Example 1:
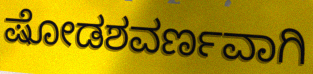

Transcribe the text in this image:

ಷೋಡಶವರ್ಣವಾಗಿ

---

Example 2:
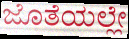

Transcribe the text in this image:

ಜೊತೆಯಲ್ಲೇ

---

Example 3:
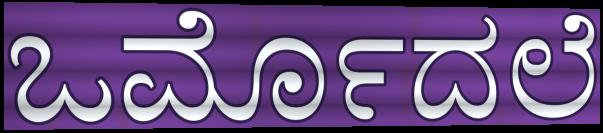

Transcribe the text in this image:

ಒರ್ಮೊದಲೆ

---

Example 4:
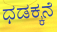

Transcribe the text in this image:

ಧಡಕ್ಕನೆ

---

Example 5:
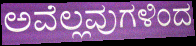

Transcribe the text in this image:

ಅವೆಲ್ಲವುಗಳಿಂದ